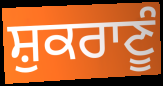
ਸ਼ੁਕਰਾਣੂੰ